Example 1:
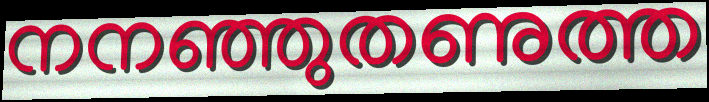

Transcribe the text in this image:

നനഞ്ഞുതണുത്ത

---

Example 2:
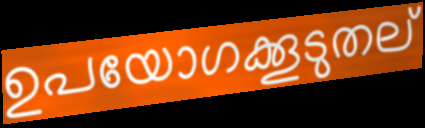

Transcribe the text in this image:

ഉപയോഗക്കൂടുതല്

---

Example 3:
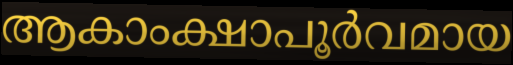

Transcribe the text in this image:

ആകാംക്ഷാപൂർവമായ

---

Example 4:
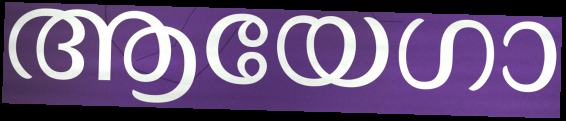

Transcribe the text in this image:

ആയേഗാ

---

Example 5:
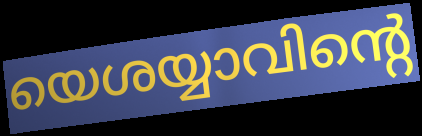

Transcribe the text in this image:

യെശയ്യാവിന്റെ